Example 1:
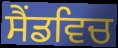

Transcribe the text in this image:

ਸੈਂਡਵਿਚ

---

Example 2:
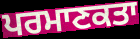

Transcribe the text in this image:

ਪਰਮਾਣਕਤਾ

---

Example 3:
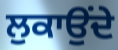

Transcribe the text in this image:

ਲੁਕਾਉਂਦੇ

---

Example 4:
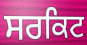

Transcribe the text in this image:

ਸਰਕਿਟ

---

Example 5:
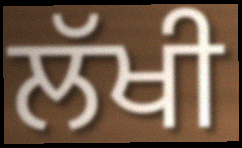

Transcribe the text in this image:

ਲੱਖੀ